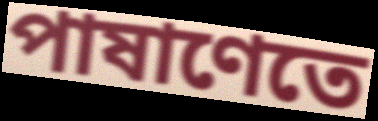
পাষাণেতে